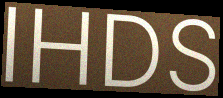
IHDS